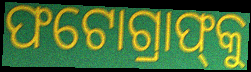
ଫଟୋଗ୍ରାଫ୍‌କୁ